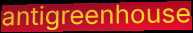
antigreenhouse